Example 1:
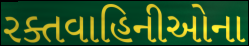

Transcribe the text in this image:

રક્તવાહિનીઓના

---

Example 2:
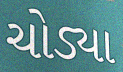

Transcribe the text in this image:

ચોડ્યા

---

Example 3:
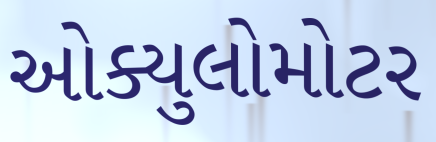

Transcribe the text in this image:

ઓક્યુલોમોટર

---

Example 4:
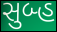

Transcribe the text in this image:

સુબ્હ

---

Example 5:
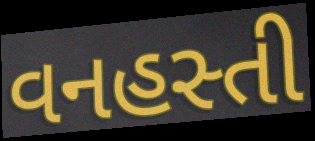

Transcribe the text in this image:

વનહસ્તી